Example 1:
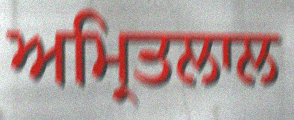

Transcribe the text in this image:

ਅਮ੍ਰਿਤਲਾਲ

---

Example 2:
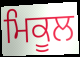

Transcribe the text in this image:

ਮਿਕੂਲ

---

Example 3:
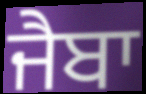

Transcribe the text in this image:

ਜੈਬਾ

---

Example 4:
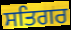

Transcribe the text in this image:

ਸਤਿਗਰ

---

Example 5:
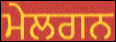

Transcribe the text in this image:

ਮੇਲਗਨ